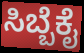
ಸಿಬ್ಬೆಕೈ